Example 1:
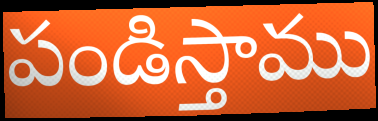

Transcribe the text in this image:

పండిస్తాము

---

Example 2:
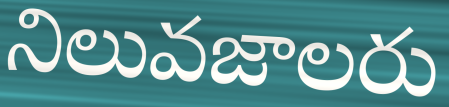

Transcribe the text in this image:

నిలువజాలరు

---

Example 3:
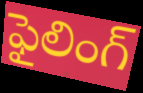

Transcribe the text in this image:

ఫైలింగ్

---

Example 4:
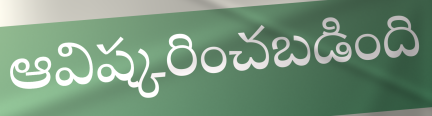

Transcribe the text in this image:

ఆవిష్కరించబడింది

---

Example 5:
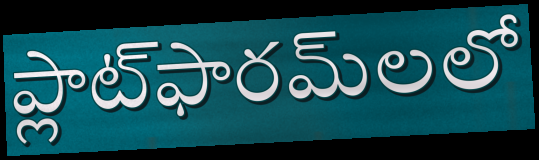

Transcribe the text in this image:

ప్లాట్‌ఫారమ్‌లలో